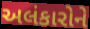
અલંકારોને